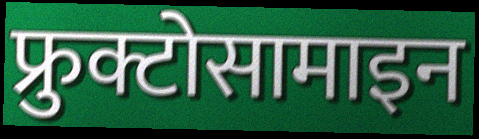
फ्रुक्टोसामाइन